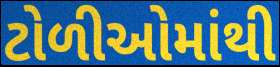
ટોળીઓમાંથી